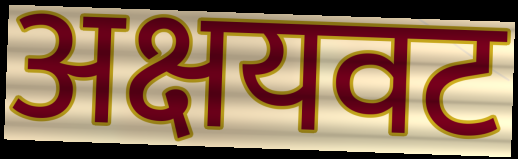
अक्षयवट